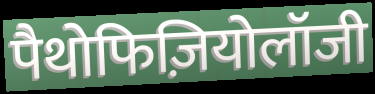
पैथोफिज़ियोलॉजी